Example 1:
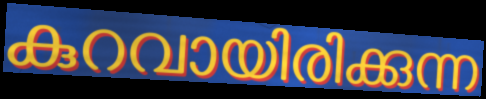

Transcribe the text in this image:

കുറവായിരിക്കുന്ന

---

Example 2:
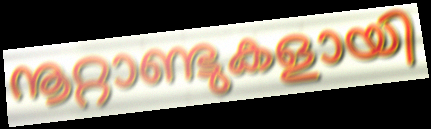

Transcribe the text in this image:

നൂറ്റാണ്ടുകളായി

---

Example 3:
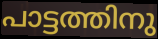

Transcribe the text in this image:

പാട്ടത്തിനു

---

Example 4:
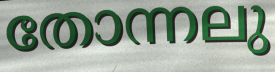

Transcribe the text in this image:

തോന്നലു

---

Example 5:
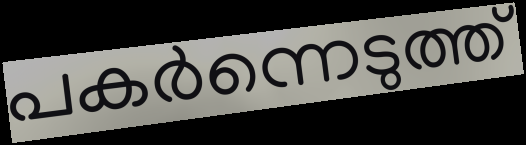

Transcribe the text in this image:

പകർന്നെടുത്ത്